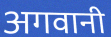
अगवानी